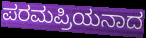
ಪರಮಪ್ರಿಯನಾದ